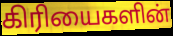
கிரியைகளின்